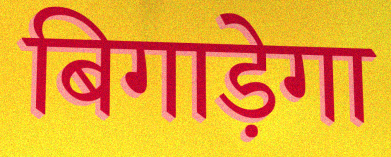
बिगाड़ेगा